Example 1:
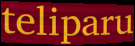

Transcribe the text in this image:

teliparu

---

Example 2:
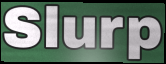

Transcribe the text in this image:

Slurp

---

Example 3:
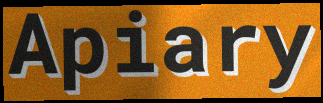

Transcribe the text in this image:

Apiary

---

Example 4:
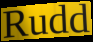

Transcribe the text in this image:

Rudd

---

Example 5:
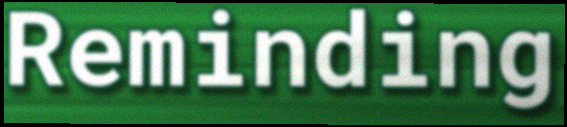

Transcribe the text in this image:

Reminding